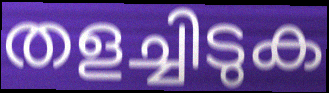
തളച്ചിടുക